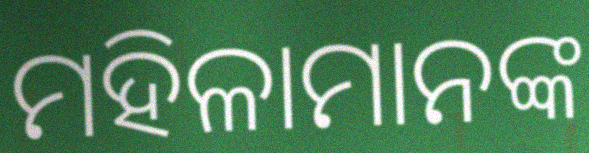
ମହିଳାମାନଙ୍କ